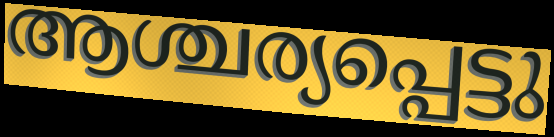
ആശ്ചര്യപ്പെട്ടു